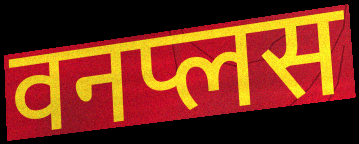
वनप्लस